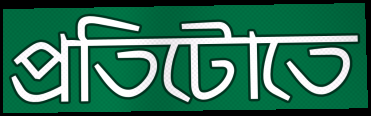
প্ৰতিটোতে